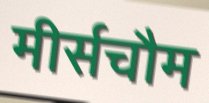
मीर्सचौम